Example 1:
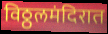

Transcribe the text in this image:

विठ्ठलमंदिरात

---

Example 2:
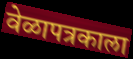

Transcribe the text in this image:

वेळापत्रकाला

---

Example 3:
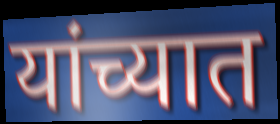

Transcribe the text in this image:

यांच्यात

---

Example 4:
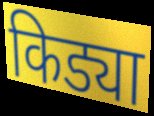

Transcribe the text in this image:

किड्या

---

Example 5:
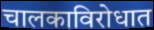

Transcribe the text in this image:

चालकाविरोधात